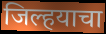
जिल्हयाचा